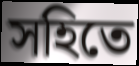
সহিতে